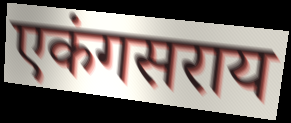
एकंगसराय